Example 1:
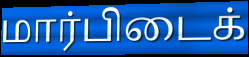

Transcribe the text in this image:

மார்பிடைக்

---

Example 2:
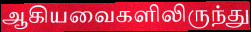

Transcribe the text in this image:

ஆகியவைகளிலிருந்து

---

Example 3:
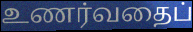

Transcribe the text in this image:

உணர்வதைப்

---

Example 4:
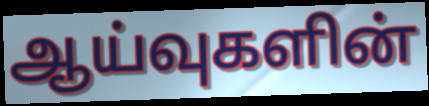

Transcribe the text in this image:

ஆய்வுகளின்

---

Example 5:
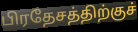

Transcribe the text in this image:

பிரதேசத்திற்குச்